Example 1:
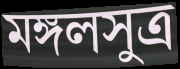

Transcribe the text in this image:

মঙ্গলসুত্র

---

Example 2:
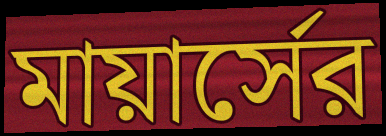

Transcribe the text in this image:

মায়ার্সের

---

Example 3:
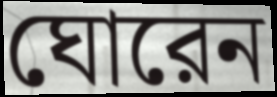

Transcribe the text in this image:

ঘোরেন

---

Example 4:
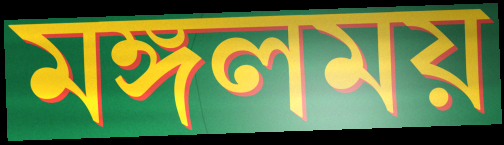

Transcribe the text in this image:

মঙ্গলময়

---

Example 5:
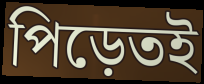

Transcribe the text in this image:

পিড়েতই